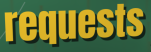
requests